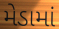
મેડામાં